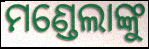
ମଣ୍ଡେଲାଙ୍କୁ